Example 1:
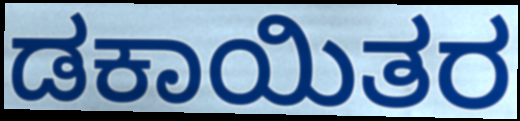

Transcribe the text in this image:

ಡಕಾಯಿತರ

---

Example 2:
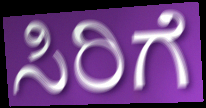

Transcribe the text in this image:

ಸಿರಿಗೆ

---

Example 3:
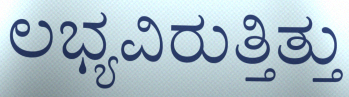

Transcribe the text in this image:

ಲಭ್ಯವಿರುತ್ತಿತ್ತು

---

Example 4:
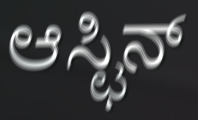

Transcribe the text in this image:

ಆಸ್ಟಿನ್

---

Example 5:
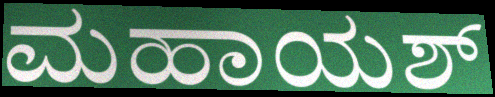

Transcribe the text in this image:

ಮಹಾಯಶ್